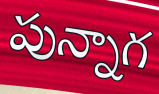
పున్నాగ